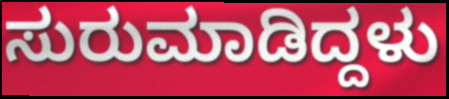
ಸುರುಮಾಡಿದ್ದಳು